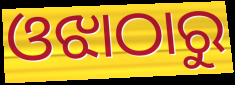
ଓଝାଠାରୁ